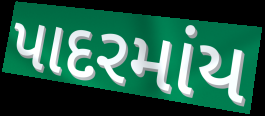
પાદરમાંય